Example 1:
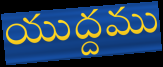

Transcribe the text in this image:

యుద్దము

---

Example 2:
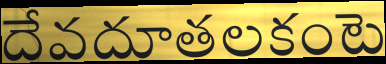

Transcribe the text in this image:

దేవదూతలకంటె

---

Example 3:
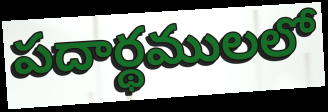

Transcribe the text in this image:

పదార్థములలో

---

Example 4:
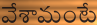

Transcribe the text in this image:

వేశామంటే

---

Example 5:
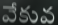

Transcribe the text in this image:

వేకువ